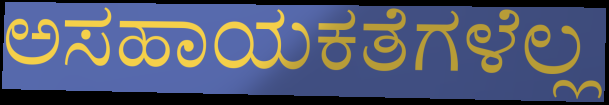
ಅಸಹಾಯಕತೆಗಳೆಲ್ಲ